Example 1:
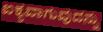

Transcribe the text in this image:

ಐಕ್ಯವಾಗುವುದನ್ನು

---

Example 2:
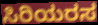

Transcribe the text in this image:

ಸಿರಿಯರಸ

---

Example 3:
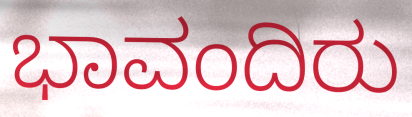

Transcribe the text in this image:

ಭಾವಂದಿರು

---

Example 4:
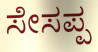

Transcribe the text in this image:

ಸೇಸಪ್ಪ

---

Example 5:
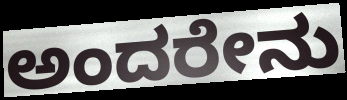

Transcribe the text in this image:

ಅಂದರೇನು